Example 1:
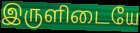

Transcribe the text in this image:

இருளிடையே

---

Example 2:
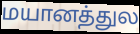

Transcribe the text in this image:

மயானத்துல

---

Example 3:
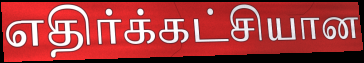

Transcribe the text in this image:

எதிர்க்கட்சியான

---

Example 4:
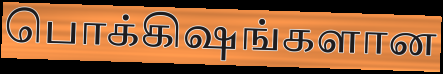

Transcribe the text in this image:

பொக்கிஷங்களான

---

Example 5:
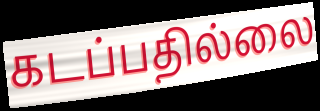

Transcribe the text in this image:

கடப்பதில்லை